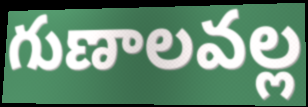
గుణాలవల్ల